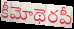
కీమోథెరపీ